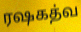
ரஷகத்வ